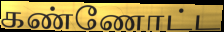
கண்ணோட்ட